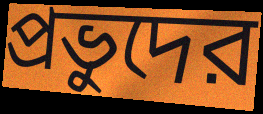
প্রভুদের